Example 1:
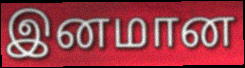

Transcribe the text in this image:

இனமான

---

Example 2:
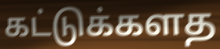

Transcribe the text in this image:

கட்டுக்களத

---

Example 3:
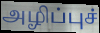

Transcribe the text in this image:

அழிப்புச்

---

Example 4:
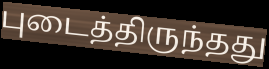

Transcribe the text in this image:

புடைத்திருந்தது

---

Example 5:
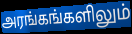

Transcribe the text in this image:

அரங்கங்களிலும்